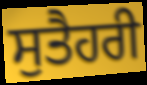
ਸੁਤੈਹਰੀ